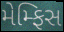
મેમ્ફિસ